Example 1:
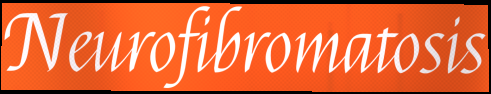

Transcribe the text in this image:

Neurofibromatosis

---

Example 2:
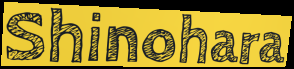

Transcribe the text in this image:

Shinohara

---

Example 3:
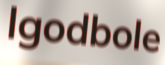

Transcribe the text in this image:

lgodbole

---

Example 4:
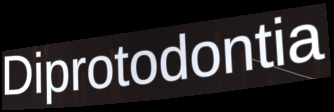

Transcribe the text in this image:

Diprotodontia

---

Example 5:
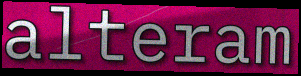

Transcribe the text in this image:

alteram